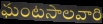
ఘంటసాలవారి